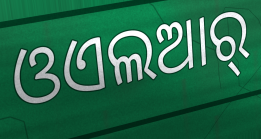
ଓଏଲଆର୍